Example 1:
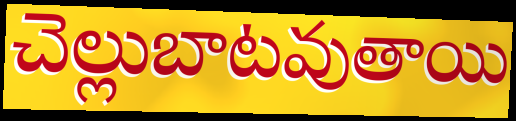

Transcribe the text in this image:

చెల్లుబాటవుతాయి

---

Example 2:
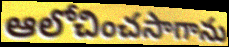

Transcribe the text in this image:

ఆలోచించసాగాను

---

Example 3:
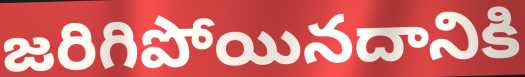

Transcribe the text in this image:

జరిగిపోయినదానికి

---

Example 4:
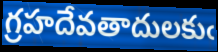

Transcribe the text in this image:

గ్రహదేవతాదులకుఁ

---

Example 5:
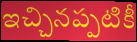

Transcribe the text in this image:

ఇచ్చినప్పటికీ